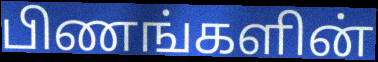
பிணங்களின்